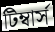
টিম্বার্স